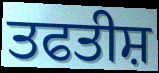
ਤਫਤੀਸ਼